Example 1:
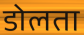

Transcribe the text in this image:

डोलता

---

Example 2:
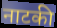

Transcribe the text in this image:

नाटकी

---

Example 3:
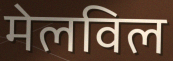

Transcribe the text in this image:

मेलविल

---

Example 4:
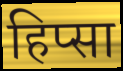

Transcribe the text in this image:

हिप्सा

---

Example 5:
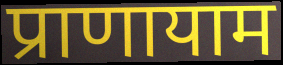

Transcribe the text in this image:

प्राणायाम